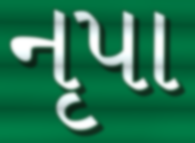
નૃપા